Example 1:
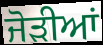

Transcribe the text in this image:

ਜੋਡ਼ੀਆਂ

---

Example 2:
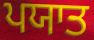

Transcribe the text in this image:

ਪਯਾਤ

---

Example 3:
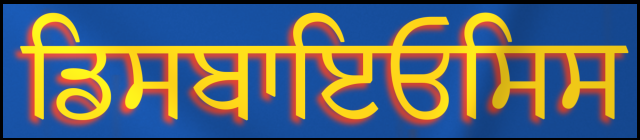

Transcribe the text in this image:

ਡਿਸਬਾਇਓਸਿਸ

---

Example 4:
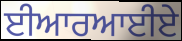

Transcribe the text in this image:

ਈਆਰਆਈਏ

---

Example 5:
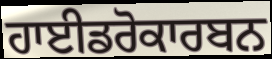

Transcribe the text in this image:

ਹਾਈਡਰੋਕਾਰਬਨ